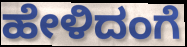
ಹೇಳಿದಂಗೆ